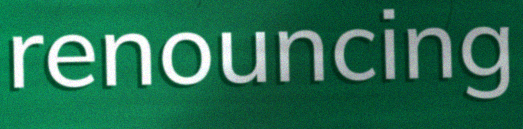
renouncing